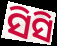
ସିସି